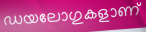
ഡയലോഗുകളാണ്